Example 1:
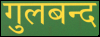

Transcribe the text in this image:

गुलबन्द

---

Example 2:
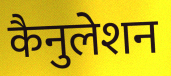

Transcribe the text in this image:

कैनुलेशन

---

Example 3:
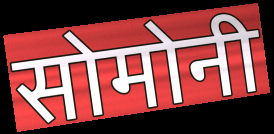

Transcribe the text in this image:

सोमोनी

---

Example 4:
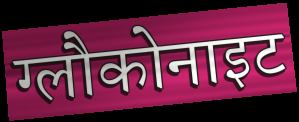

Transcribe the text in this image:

ग्लौकोनाइट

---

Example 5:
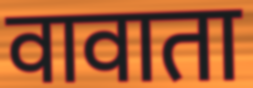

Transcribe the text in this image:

वावाता